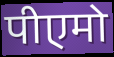
पीएमो